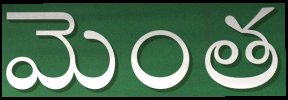
మెంత